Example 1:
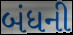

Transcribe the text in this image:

બંધની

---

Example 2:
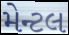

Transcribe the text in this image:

મેન્ટલ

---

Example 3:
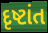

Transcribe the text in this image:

દૃષ્ટાંત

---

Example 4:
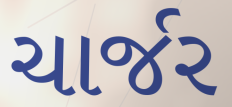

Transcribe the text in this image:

ચાર્જર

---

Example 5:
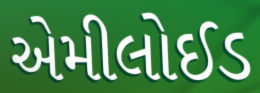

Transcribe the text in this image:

એમીલોઈડ